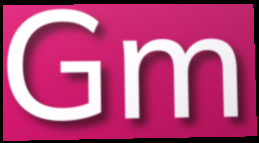
Gm